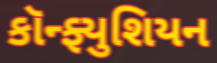
કૉન્ફ્યુશિયન